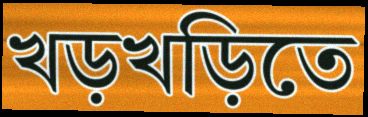
খড়খড়িতে